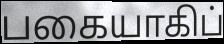
பகையாகிப்